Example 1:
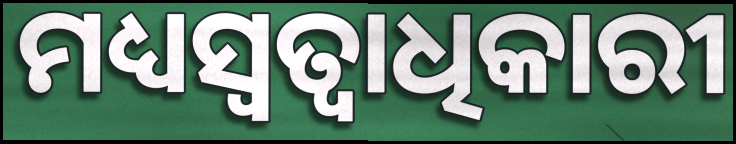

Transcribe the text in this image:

ମଧ୍ୟସ୍ୱତ୍ୱାଧିକାରୀ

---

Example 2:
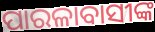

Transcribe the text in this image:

ପାରଳାବାସୀଙ୍କ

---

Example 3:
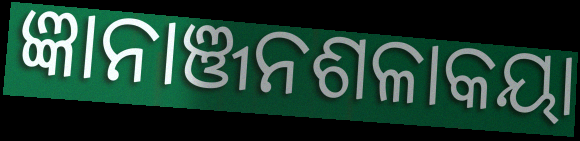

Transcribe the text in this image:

ଜ୍ଞାନାଞ୍ଜନଶଳାକୟା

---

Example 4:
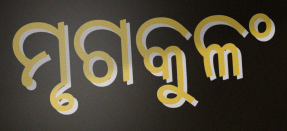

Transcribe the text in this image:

ମୃଗକୁଳଂ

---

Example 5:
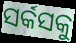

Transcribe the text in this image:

ସର୍କସକୁ